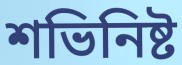
শভিনিষ্ট